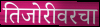
तिजोरीवरचा